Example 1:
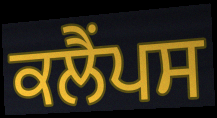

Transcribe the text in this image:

ਕਲੈਂਪਸ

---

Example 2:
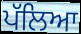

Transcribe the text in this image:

ਪੱਲਿਆ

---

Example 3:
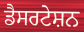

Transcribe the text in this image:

ਡੈਸਰਟੇਸ਼ਨ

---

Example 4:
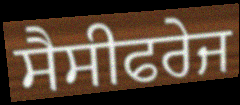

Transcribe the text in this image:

ਸੈਸੀਫਰੇਜ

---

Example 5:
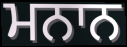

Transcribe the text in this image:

ਮਨਾਨ